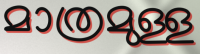
മാത്രമുള്ള